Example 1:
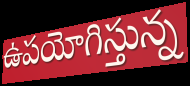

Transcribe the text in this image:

ఉపయోగిస్తున్న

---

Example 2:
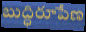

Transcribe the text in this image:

బుద్ధిరూపేణ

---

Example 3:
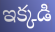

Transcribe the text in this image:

ఇక్కడి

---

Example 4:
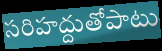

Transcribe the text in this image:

సరిహద్దుతోపాటు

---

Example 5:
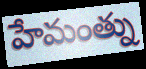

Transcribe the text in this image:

హేమంత్ను